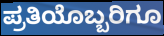
ಪ್ರತಿಯೊಬ್ಬರಿಗೂ